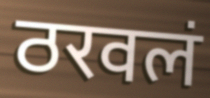
ठरवलं